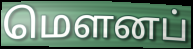
மெளனப்